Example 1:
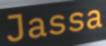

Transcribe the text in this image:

Jassa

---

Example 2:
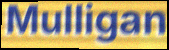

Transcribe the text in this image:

Mulligan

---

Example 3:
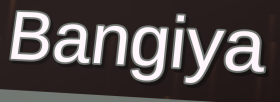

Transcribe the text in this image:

Bangiya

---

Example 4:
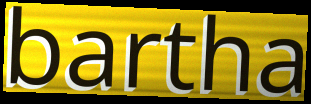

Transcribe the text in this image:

bartha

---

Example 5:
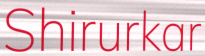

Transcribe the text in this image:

Shirurkar